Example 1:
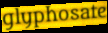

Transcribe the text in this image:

glyphosate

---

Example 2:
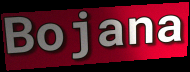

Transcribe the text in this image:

Bojana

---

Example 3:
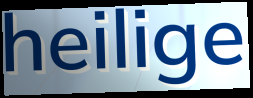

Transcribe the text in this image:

heilige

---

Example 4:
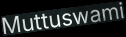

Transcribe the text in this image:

Muttuswami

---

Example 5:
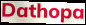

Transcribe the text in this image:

Dathopa